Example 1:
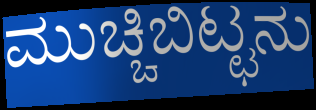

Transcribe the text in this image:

ಮುಚ್ಚಿಬಿಟ್ಟನು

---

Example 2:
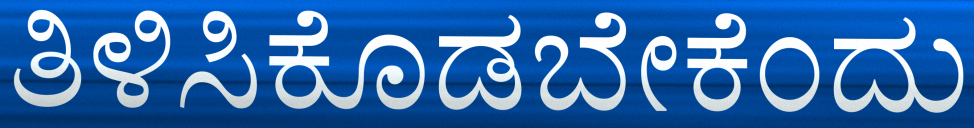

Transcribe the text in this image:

ತಿಳಿಸಿಕೊಡಬೇಕೆಂದು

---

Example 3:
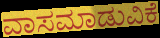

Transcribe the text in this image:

ವಾಸಮಾಡುವಿಕೆ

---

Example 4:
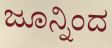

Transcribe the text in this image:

ಜೂನ್ನಿಂದ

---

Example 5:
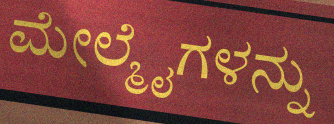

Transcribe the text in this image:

ಮೇಲ್ಮೈಗಳನ್ನು